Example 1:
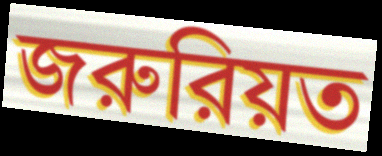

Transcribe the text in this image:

জরুরিয়ত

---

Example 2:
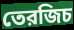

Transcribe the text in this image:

তেরজিচ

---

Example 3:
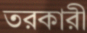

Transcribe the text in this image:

তরকারী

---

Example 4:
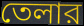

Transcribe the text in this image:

তেলার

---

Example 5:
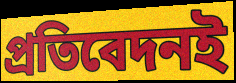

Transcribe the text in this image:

প্রতিবেদনই